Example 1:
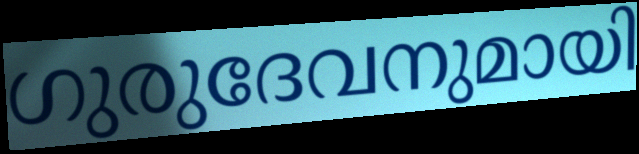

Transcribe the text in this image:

ഗുരുദേവനുമായി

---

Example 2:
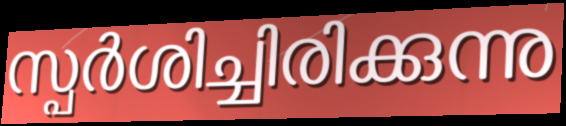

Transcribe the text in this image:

സ്പർശിച്ചിരിക്കുന്നു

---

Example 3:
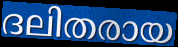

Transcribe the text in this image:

ദലിതരായ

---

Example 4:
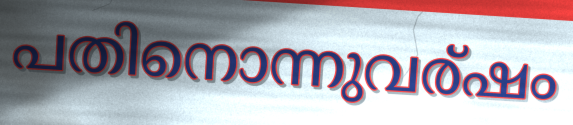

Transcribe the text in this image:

പതിനൊന്നുവര്ഷം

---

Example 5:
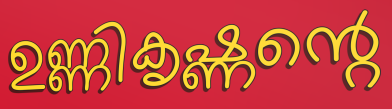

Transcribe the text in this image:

ഉണ്ണികൃഷ്ണന്റെ